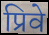
प्रिवे